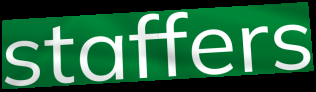
staffers